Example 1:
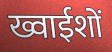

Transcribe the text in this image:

ख्वाईशों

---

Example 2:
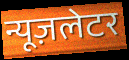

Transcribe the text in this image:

न्यूज़लेटर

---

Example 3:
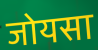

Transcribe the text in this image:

जोयसा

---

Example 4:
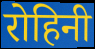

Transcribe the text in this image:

रोहिनी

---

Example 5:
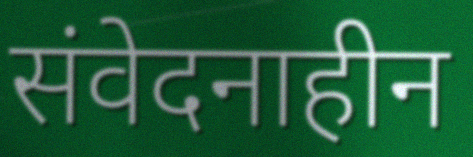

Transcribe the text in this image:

संवेदनाहीन